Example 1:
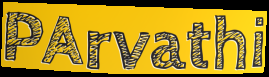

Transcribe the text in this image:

PArvathi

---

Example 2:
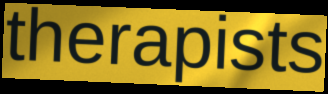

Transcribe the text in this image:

therapists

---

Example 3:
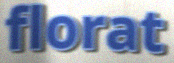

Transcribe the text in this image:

florat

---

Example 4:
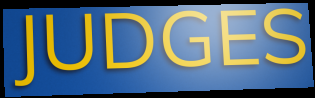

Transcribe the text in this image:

JUDGES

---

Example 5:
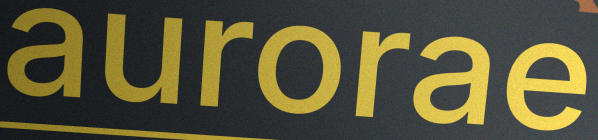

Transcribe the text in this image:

aurorae